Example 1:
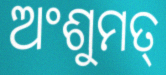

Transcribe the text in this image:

ଅଂଶୁମତ୍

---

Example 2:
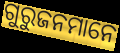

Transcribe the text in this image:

ଗୁରୁଜନମାନେ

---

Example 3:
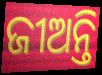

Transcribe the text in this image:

ଜୀଅନ୍ତି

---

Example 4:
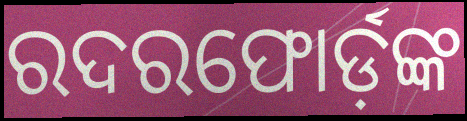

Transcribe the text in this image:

ରଦରଫୋର୍ଡ଼ଙ୍କ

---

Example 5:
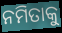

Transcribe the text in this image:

ନମିତାକୁ